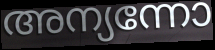
അന്യന്നോ